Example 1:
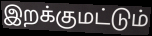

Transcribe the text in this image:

இறக்குமட்டும்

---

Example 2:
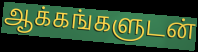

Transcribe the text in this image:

ஆக்கங்களுடன்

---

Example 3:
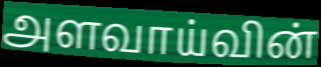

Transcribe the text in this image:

அளவாய்வின்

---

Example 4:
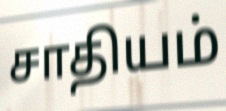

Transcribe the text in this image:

சாதியம்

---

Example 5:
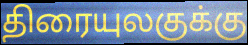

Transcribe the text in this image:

திரையுலகுக்கு